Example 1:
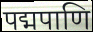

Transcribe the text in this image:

पद्मपाणि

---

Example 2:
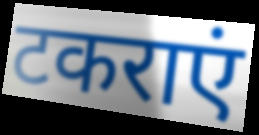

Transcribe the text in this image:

टकराएं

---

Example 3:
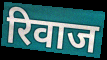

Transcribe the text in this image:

रिवाज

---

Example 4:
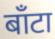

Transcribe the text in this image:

बाँटा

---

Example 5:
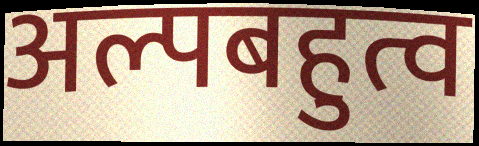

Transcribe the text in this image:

अल्पबहुत्व